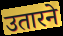
उतारने